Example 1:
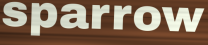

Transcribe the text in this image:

sparrow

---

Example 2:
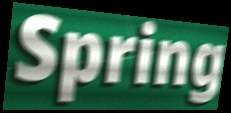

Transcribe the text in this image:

Spring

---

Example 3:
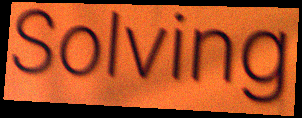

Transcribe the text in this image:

Solving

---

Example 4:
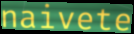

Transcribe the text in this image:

naivete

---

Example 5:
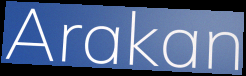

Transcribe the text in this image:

Arakan